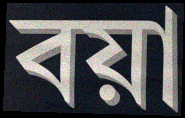
বয়া